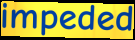
impeded